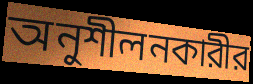
অনুশীলনকারীর